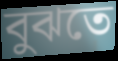
বুঝতে